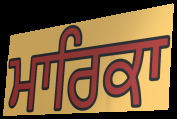
ਮਾਰਿਕਾ